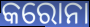
କରୋନା